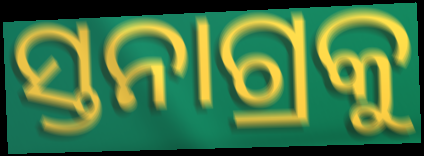
ସ୍ତନାଗ୍ରକୁ